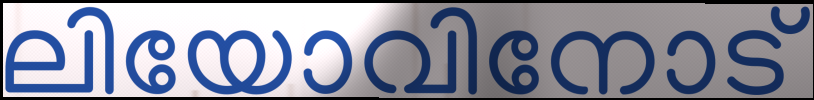
ലിയോവിനോട്